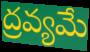
ద్రవ్యమే